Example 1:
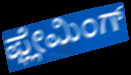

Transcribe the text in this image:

ಫ್ಲೇಮಿಂಗ್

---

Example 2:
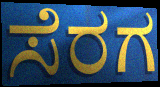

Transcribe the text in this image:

ಸೆರಗ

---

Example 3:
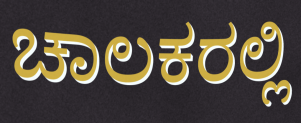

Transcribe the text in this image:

ಚಾಲಕರಲ್ಲಿ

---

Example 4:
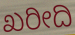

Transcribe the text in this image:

ಖರೀದಿ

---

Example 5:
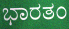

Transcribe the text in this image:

ಭಾರತಂ